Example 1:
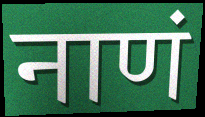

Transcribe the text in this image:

नाणं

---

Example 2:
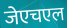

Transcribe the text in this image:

जेएचएल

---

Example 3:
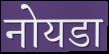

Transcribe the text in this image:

नोयडा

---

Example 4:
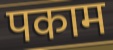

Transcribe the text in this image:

पकाम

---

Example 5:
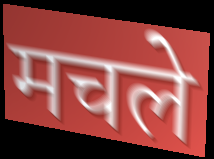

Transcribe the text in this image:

मचले